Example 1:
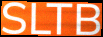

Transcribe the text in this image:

SLTB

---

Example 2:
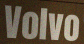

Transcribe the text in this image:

Volvo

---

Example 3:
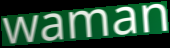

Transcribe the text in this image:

waman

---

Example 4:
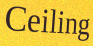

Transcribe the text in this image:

Ceiling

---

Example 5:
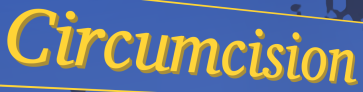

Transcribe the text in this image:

Circumcision